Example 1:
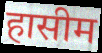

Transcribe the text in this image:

हासीम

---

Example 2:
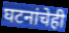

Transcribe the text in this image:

घटनांचेही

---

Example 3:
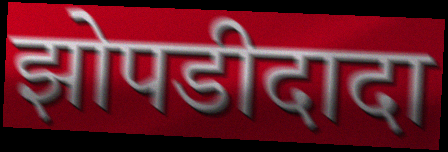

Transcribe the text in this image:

झोपडीदादा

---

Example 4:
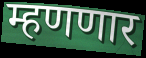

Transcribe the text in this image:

म्हणणार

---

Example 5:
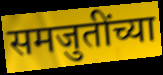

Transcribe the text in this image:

समजुतींच्या